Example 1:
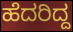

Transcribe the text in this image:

ಹೆದರಿದ್ದ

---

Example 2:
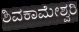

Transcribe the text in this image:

ಶಿವಕಾಮೇಶ್ವರಿ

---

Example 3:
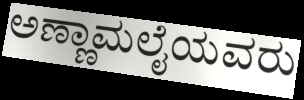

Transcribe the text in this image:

ಅಣ್ಣಾಮಲೈಯವರು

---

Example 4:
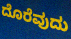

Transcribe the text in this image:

ದೊರೆವುದು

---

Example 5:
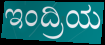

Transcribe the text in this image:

ಇಂದ್ರಿಯ